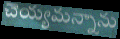
చెయ్యమన్నాను